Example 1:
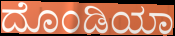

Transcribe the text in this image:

ದೊಂಡಿಯಾ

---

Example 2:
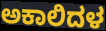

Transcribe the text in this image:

ಅಕಾಲಿದಳ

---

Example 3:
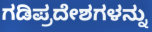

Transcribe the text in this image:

ಗಡಿಪ್ರದೇಶಗಳನ್ನು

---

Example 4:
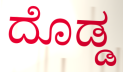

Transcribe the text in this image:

ದೊಡ್ಡ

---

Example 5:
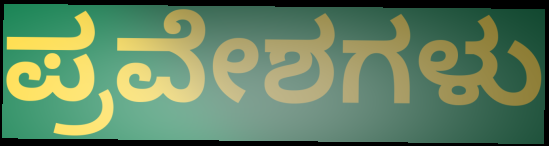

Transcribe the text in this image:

ಪ್ರವೇಶಗಳು